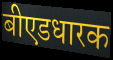
बीएडधारक